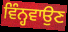
ਵਿੰਨ੍ਹਵਾਉਣ